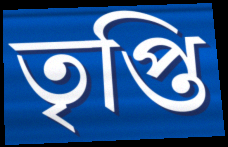
তৃপ্তি